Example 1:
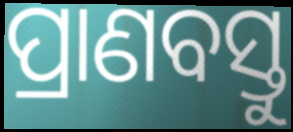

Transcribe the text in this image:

ପ୍ରାଣବସ୍ତୁ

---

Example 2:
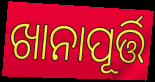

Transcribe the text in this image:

ଖାନାପୂର୍ତ୍ତି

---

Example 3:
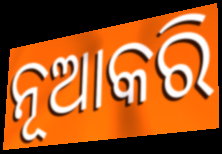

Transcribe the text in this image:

ନୂଆକରି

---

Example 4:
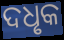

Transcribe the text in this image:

ଦଧୃକ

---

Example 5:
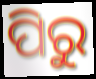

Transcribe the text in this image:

ପିରୁ